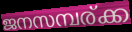
ജനസമ്പര്ക്ക